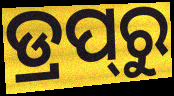
ଡ୍ରପ୍‍ରୁ